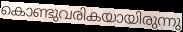
കൊണ്ടുവരികയായിരുന്നു